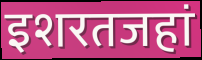
इशरतजहां